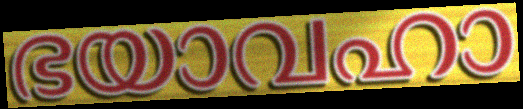
ഭയാവഹാ